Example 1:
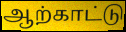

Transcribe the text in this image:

ஆற்காட்டு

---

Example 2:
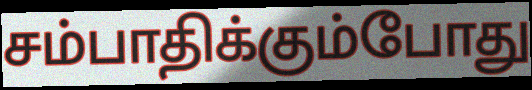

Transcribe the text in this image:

சம்பாதிக்கும்போது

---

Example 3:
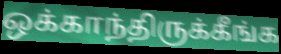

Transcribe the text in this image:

ஒக்காந்திருக்கீங்க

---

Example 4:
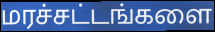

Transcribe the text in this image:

மரச்சட்டங்களை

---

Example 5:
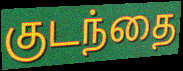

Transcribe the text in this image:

குடந்தை